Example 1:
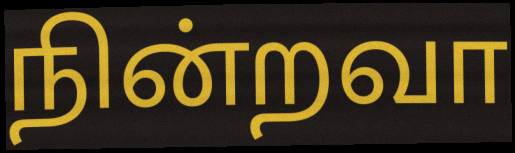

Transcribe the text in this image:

நின்றவா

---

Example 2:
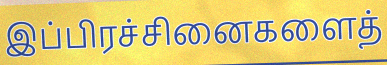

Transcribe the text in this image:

இப்பிரச்சினைகளைத்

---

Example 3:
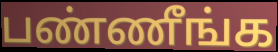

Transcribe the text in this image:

பண்ணீங்க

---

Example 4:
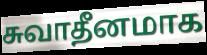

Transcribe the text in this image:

சுவாதீனமாக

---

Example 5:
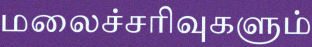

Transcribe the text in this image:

மலைச்சரிவுகளும்